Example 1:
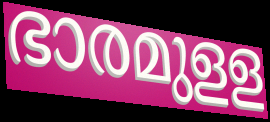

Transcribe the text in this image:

ഭാരമുളള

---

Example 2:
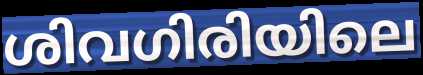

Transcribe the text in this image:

ശിവഗിരിയിലെ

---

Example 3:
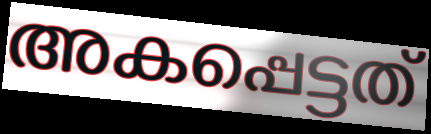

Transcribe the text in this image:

അകപ്പെട്ടത്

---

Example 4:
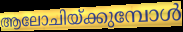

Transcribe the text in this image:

ആലോചിയ്ക്കുമ്പോൾ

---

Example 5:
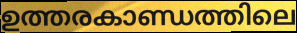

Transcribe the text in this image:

ഉത്തരകാണ്ഡത്തിലെ